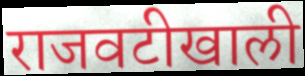
राजवटीखाली